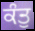
ਕੰਤੁ